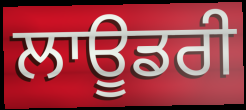
ਲਾਊਡਰੀ